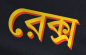
রেক্স